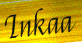
Inkaa